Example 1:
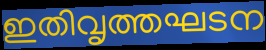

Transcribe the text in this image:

ഇതിവൃത്തഘടന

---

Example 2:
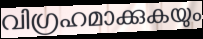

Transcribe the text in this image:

വിഗ്രഹമാക്കുകയും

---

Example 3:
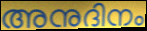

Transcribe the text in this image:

അനുദിനം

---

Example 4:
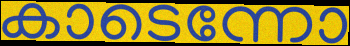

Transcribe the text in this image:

കാടെന്നോ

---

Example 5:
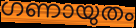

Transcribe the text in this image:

ഗണായുതം